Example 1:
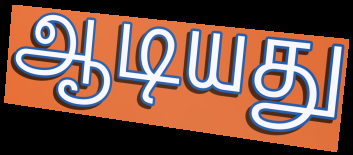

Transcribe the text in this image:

ஆடியது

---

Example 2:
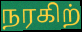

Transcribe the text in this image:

நரகிற்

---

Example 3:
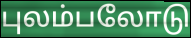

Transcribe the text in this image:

புலம்பலோடு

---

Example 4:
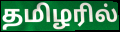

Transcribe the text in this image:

தமிழரில்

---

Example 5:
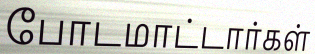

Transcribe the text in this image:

போடமாட்டார்கள்